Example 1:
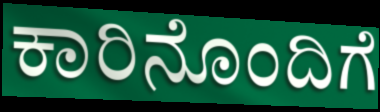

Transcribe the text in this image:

ಕಾರಿನೊಂದಿಗೆ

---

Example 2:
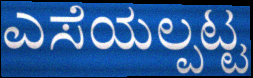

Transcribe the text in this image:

ಎಸೆಯಲ್ಪಟ್ಟ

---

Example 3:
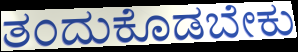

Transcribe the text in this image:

ತಂದುಕೊಡಬೇಕು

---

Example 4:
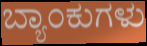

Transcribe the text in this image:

ಬ್ಯಾಂಕುಗಳು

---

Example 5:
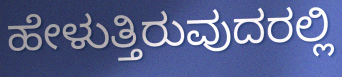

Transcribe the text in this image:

ಹೇಳುತ್ತಿರುವುದರಲ್ಲಿ